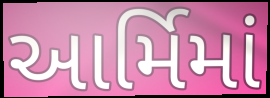
આર્મિમાં